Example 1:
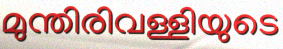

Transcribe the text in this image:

മുന്തിരിവള്ളിയുടെ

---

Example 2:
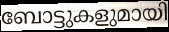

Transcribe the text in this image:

ബോട്ടുകളുമായി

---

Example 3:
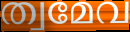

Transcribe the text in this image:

ത്വമേവ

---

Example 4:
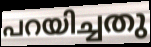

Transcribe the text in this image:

പറയിച്ചതു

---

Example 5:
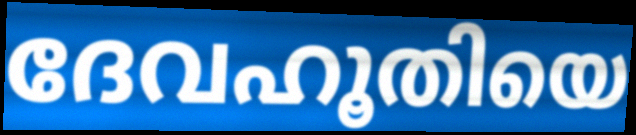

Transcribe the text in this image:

ദേവഹൂതിയെ